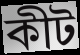
কীট